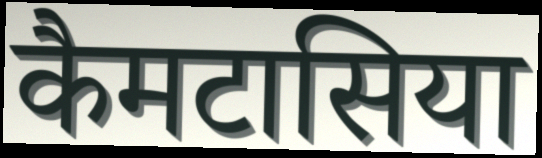
कैमटासिया